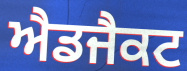
ਐਡਜੈਕਟ